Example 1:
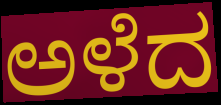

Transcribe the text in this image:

ಅಳೆದ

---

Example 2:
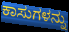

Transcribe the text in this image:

ಕಾಸುಗಳನ್ನು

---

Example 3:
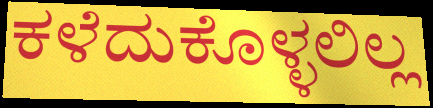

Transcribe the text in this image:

ಕಳೆದುಕೊಳ್ಳಲಿಲ್ಲ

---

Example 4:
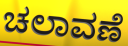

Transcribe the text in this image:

ಚಲಾವಣೆ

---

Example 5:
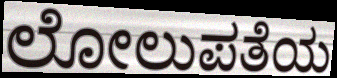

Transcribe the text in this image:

ಲೋಲುಪತೆಯ